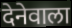
देनेवाला